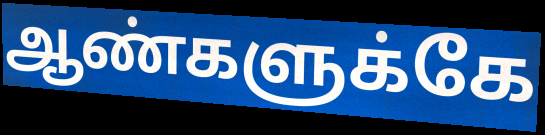
ஆண்களுக்கே